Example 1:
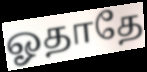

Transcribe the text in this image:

ஓதாதே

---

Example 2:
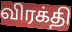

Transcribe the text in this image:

விரக்தி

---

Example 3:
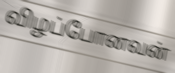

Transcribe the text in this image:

விழப்போனவன்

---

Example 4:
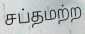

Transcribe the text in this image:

சப்தமற்ற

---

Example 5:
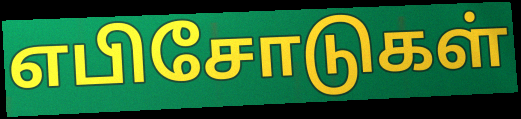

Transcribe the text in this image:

எபிசோடுகள்